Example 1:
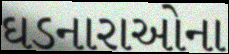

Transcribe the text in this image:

ઘડનારાઓના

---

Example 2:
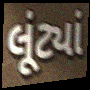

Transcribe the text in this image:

લૂંટ્યાં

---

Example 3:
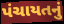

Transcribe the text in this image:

પંચાયતનું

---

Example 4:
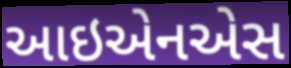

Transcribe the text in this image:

આઇએનએસ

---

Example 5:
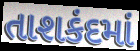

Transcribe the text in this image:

તાશકંદમાં